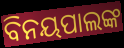
ବିନୟପାଲଙ୍କ